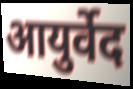
आयुर्वेद